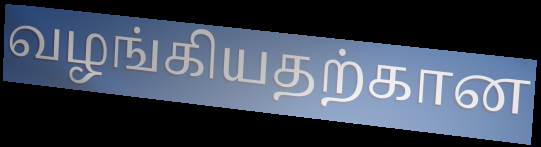
வழங்கியதற்கான